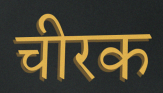
चीरक